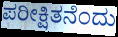
ಪರೀಕ್ಷಿತನೆಂದು